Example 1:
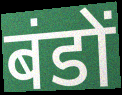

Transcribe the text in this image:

बंडों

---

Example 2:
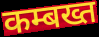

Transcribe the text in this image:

कम्बख्त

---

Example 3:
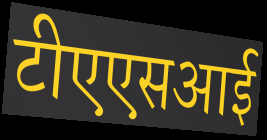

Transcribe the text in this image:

टीएएसआई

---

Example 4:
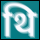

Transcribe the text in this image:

थि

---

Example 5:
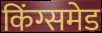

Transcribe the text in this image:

किंग्समेड